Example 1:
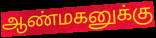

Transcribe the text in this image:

ஆண்மகனுக்கு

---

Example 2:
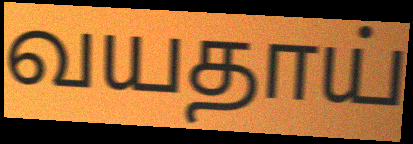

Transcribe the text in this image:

வயதாய்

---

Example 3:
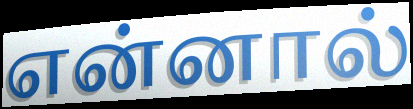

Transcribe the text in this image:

என்னால்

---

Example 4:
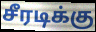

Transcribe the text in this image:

சீரடிக்கு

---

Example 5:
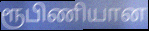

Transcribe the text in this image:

ரூபிணியான